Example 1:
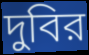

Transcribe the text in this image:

দুবির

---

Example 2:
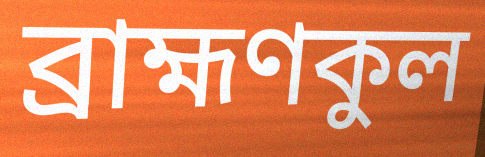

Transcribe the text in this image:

ব্রাহ্মণকুল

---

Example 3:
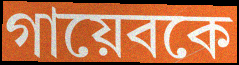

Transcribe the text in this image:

গায়েবকে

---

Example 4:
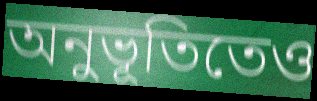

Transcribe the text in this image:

অনুভূতিতেও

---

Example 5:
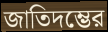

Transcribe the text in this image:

জাতিদম্ভের